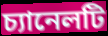
চ্যানেলটি